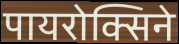
पायरोक्सिने